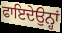
ਫਾਇਦੇਉਨ੍ਹਾਂ